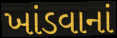
ખાંડવાનાં